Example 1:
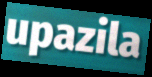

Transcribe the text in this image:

upazila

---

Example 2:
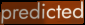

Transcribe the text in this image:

predicted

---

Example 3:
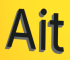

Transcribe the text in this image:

Ait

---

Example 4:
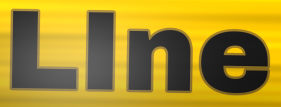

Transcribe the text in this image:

LIne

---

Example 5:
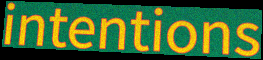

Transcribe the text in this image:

intentions